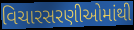
વિચારસરણીઓમાંથી